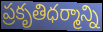
ప్రకృతిధర్మాన్ని